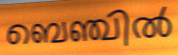
ബെഞ്ചിൽ